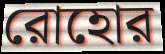
রোহোর